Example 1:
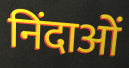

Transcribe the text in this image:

निंदाओं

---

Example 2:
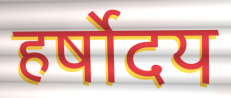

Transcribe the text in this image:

हर्षोदय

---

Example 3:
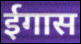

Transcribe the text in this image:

ईगास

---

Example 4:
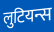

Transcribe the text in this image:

लुटियन्स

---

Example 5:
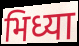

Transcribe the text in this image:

भिध्या